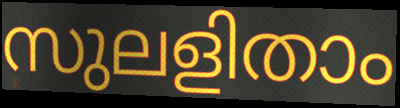
സുലളിതാം